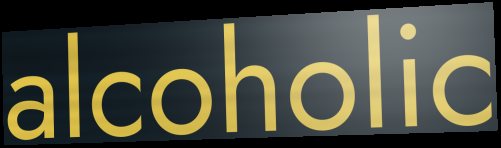
alcoholic